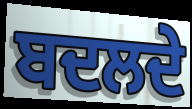
ਬਦਲਦੇ